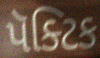
પૅક્ટિક